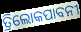
ତ୍ରିଲୋକପାବନୀ